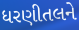
ધરણીતલને